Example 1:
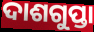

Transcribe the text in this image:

ଦାଶଗୁପ୍ତା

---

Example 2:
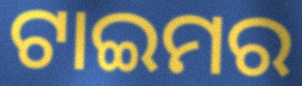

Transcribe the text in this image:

ଟାଇମର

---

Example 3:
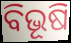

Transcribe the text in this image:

ବିଭୂଷି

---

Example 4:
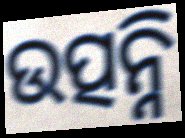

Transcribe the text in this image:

ଉତ୍ପନ୍ନି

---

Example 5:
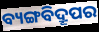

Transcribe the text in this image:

ବ୍ୟଙ୍ଗବିଦ୍ରୂପର